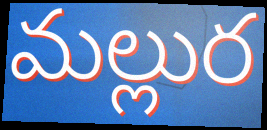
మల్లుర